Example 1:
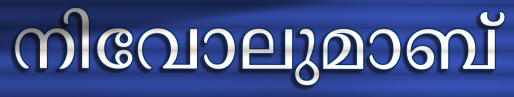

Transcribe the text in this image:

നിവോലുമാബ്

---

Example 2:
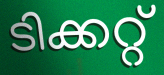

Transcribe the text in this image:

ടിക്കറ്റ്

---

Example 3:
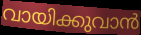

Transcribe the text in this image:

വായിക്കുവാൻ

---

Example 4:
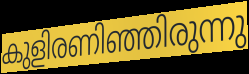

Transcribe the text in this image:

കുളിരണിഞ്ഞിരുന്നു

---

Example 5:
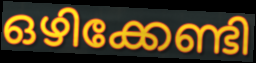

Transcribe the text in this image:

ഒഴിക്കേണ്ടി